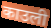
काउली